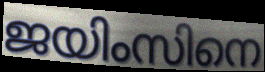
ജയിംസിനെ